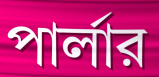
পার্লার